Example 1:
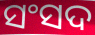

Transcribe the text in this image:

ସଂସଦ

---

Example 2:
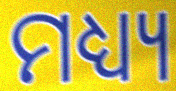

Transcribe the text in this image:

ମଧ୍ୟ୍ୟ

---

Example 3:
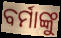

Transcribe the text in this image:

ବର୍ମାଙ୍କୁ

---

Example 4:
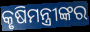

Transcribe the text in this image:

କୃଷିମନ୍ତ୍ରୀଙ୍କର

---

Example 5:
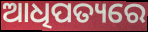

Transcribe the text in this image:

ଆଧିପତ୍ୟରେ